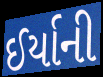
ઈર્યાની